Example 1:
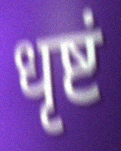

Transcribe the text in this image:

धृष्टं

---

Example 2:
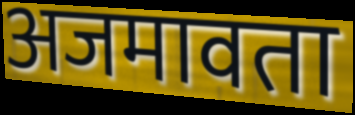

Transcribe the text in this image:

अजमावता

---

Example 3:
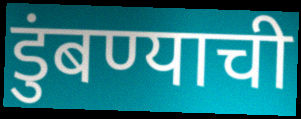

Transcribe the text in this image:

डुंबण्याची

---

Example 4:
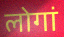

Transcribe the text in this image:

लोगां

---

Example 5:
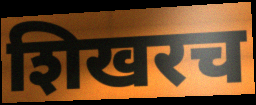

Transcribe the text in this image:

शिखरच